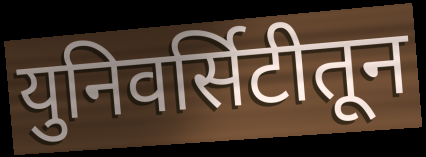
युनिवर्सिटीतून